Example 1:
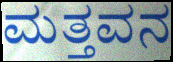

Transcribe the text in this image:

ಮತ್ತವನ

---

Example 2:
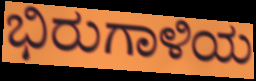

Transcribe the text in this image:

ಭಿರುಗಾಳಿಯ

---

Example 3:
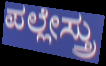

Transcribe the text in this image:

ಪಲ್ಲೇಸ್ತ್ರು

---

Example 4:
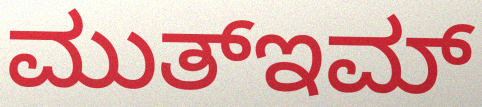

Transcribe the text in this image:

ಮುತ್ಇಮ್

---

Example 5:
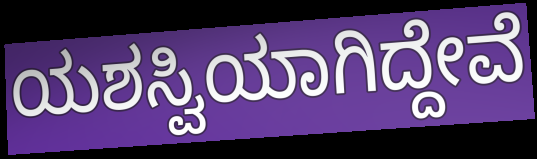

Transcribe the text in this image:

ಯಶಸ್ವಿಯಾಗಿದ್ದೇವೆ